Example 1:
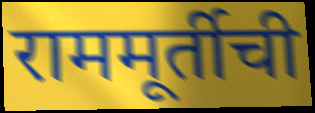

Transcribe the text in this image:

राममूर्तीची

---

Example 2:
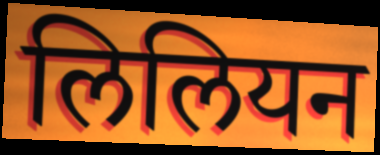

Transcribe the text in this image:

लिलियन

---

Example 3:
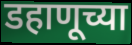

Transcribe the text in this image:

डहाणूच्या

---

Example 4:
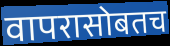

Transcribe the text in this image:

वापरासोबतच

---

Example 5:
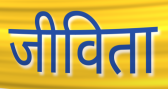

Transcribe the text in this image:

जीविता